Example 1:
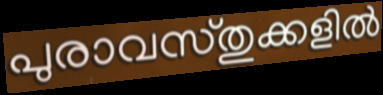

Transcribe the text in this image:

പുരാവസ്തുക്കളിൽ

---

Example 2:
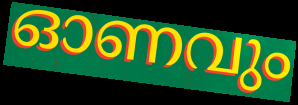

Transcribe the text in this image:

ഓണവും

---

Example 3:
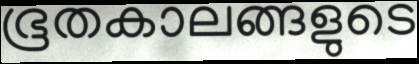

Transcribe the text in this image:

ഭൂതകാലങ്ങളുടെ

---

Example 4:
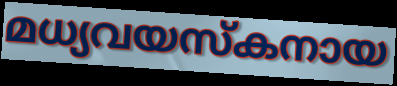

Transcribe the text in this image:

മധ്യവയസ്കനായ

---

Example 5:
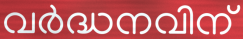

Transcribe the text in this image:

വർദ്ധനവിന്